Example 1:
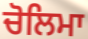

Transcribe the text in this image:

ਚੋਲਿਮਾ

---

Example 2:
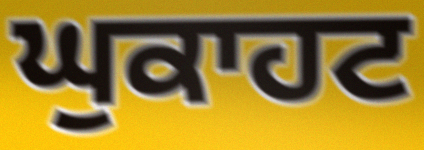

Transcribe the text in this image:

ਘੁਕਾਹਟ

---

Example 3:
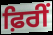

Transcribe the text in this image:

ਫ਼ਿਰੀਂ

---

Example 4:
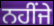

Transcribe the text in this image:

ਨਹੀਂਜੇ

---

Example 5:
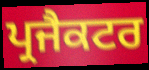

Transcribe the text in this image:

ਪ੍ਰਜੈਕਟਰ